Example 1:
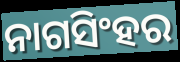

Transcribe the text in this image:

ନାଗସିଂହର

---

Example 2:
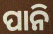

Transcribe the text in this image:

ପାନି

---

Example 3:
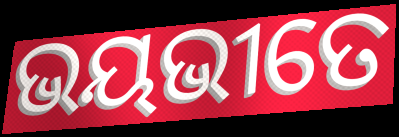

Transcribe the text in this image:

ଭୟଭୀତେ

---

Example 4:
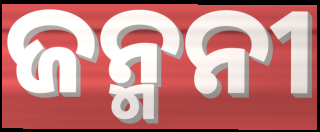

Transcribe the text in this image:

ଜନ୍ମନୀ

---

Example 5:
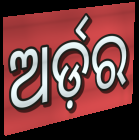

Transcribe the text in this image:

ଅର୍ଡ଼ର